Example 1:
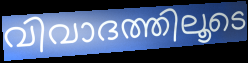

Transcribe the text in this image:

വിവാദത്തിലൂടെ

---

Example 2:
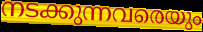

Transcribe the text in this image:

നടക്കുന്നവരെയും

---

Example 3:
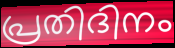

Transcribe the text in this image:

പ്രതിദിനം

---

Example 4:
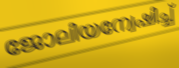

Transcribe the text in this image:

ജോലിയന്വേഷിച്ച്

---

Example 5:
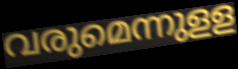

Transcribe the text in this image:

വരുമെന്നുളള